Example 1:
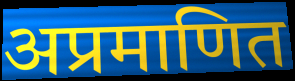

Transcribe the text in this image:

अप्रमाणित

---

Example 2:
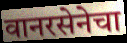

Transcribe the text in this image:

वानरसेनेचा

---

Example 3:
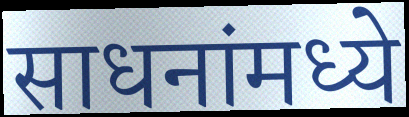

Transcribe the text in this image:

साधनांमध्ये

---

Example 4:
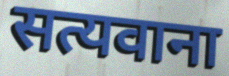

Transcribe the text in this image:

सत्यवाना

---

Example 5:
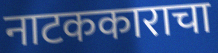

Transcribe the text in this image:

नाटककाराचा